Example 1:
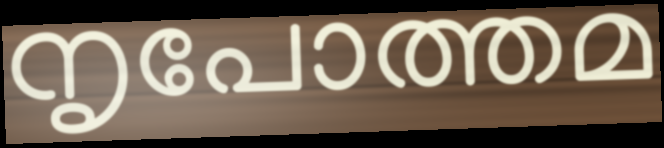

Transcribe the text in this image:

നൃപോത്തമ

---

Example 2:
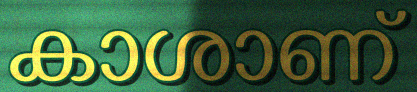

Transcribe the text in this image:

കാശാണ്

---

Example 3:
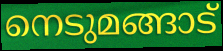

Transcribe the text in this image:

നെടുമങ്ങാട്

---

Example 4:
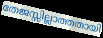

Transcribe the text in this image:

തേജസ്സില്ലാത്തതായി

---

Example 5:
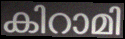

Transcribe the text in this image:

കിറാമി